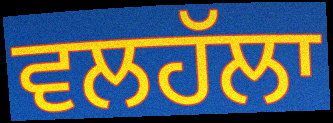
ਵਲਹੱਲਾ